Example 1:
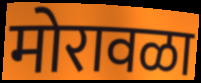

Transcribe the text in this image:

मोरावळा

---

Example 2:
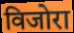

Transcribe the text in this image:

विजोरा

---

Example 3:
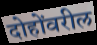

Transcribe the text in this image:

दोहोंवरील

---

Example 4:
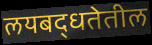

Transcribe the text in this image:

लयबद्धतेतील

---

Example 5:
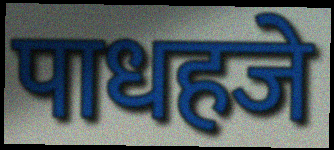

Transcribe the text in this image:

पाधहजे